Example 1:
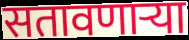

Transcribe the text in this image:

सतावणार्‍या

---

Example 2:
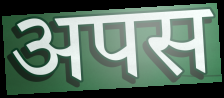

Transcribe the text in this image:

अपस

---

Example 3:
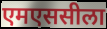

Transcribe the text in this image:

एमएससीला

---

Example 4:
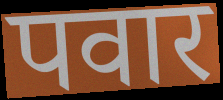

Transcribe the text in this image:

पवार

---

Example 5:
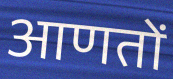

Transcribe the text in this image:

आणतों